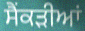
ਸੈਂਕੜੀਆਂ